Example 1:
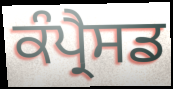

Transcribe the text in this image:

ਕੰਪ੍ਰੈਸਡ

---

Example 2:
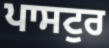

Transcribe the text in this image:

ਪਾਸਟੁਰ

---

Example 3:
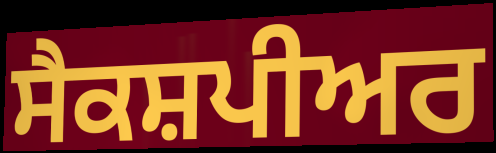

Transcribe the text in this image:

ਸੈਕਸ਼ਪੀਅਰ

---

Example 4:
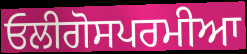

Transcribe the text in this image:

ਓਲੀਗੋਸਪਰਮੀਆ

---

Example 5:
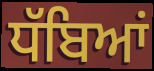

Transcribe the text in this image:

ਧੱਬਿਆਂ